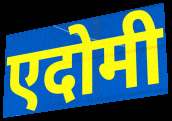
एदोमी